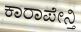
ಕಾರಾಪೇನ್ತಿ